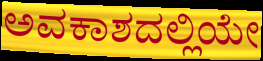
ಅವಕಾಶದಲ್ಲಿಯೇ